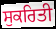
ਸੁਕਰਿਤੀ